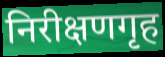
निरीक्षणगृह